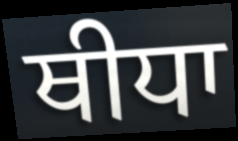
ਥੀਧਾ